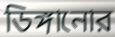
ডিঙ্গানোর